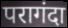
परागंदा